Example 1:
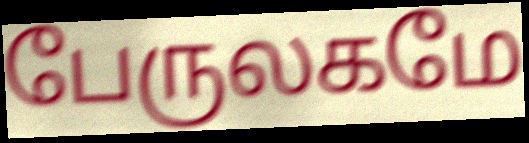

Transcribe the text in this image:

பேருலகமே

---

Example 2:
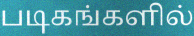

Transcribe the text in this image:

படிகங்களில்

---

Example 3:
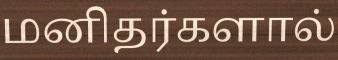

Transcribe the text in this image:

மனிதர்களால்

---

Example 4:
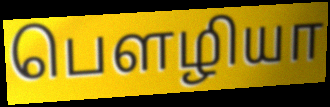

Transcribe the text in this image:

பௌழியா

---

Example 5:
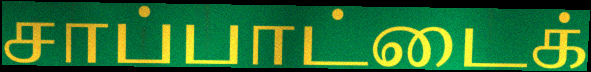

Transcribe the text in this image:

சாப்பாட்டைக்